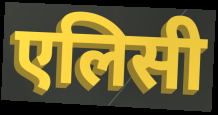
एलिसी